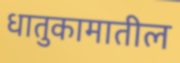
धातुकामातील